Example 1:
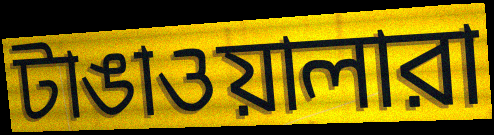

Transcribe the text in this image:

টাঙাওয়ালারা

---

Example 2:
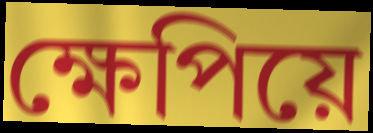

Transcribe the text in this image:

ক্ষেপিয়ে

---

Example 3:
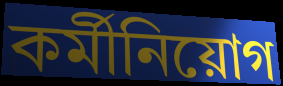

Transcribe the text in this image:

কর্মীনিয়োগ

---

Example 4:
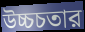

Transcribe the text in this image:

উচ্চচতার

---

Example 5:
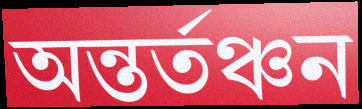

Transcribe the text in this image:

অন্তর্তঞ্চন